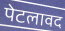
पेटलावद